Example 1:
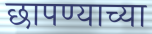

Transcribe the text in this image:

छापण्याच्या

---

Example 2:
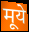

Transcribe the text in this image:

मूये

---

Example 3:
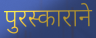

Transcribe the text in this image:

पुरस्काराने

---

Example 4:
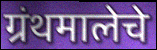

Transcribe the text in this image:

ग्रंथमालेचे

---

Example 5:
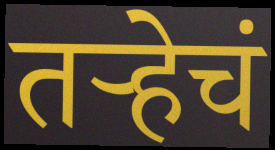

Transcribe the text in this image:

तर्‍हेचं